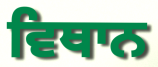
ਵਿਥਾਨ